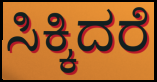
ಸಿಕ್ಕಿದರೆ